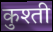
कुश्‍ती